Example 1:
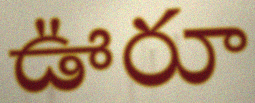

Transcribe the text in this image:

ఊరూ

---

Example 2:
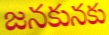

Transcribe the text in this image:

జనకునకు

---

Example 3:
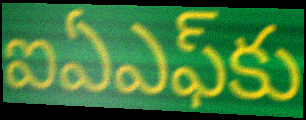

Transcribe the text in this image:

ఐఏఎఫ్‌కు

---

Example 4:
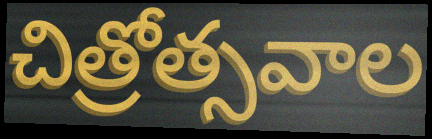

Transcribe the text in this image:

చిత్రోత్సవాల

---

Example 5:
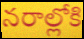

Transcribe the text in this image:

నరాల్లోకి